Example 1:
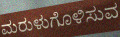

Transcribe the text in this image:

ಮರುಳುಗೊಳಿಸುವ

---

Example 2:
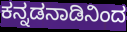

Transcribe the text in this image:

ಕನ್ನಡನಾಡಿನಿಂದ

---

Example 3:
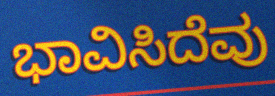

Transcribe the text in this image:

ಭಾವಿಸಿದೆವು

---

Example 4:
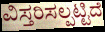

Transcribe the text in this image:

ವಿಸ್ತರಿಸಲ್ಪಟ್ಟಿದೆ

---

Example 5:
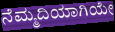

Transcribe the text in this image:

ನೆಮ್ಮದಿಯಾಗಿಯೇ